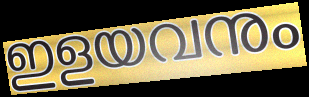
ഇളയവനും